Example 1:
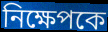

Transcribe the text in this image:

নিক্ষেপকে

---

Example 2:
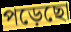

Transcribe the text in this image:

পড়েছো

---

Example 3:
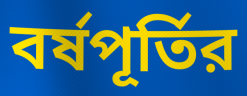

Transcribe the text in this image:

বর্ষপূর্তির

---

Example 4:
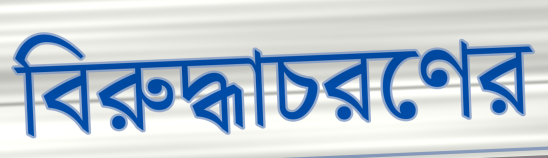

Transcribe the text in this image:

বিরুদ্ধাচরণের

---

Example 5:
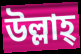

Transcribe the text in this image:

উল্লাহ্